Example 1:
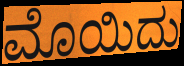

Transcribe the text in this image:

ಮೊಯಿದು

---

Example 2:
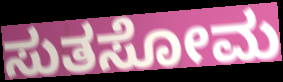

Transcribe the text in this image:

ಸುತಸೋಮ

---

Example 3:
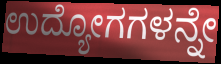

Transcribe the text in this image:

ಉದ್ಯೋಗಗಳನ್ನೇ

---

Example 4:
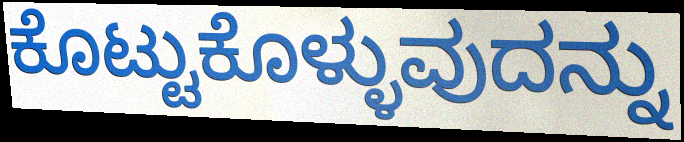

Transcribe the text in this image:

ಕೊಟ್ಟುಕೊಳ್ಳುವುದನ್ನು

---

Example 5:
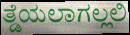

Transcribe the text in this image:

ತ್ಡೆಯಲಾಗಲ್ಲಲಿ